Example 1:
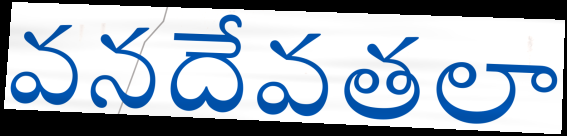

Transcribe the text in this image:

వనదేవతలా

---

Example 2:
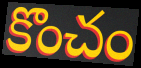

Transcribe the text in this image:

కొంచం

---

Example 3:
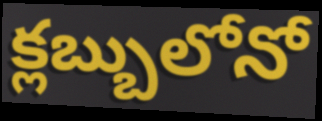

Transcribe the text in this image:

క్లబ్బులోనో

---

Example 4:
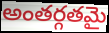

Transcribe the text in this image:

అంతర్గతమై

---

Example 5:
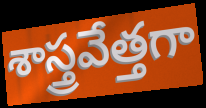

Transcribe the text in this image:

శాస్త్రవేత్తగా